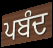
ਪਬੰਦ